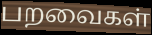
பறவைகள்